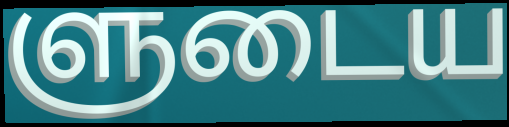
ளுடைய